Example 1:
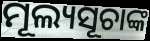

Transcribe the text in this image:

ମୂଲ୍ୟସୂଚାଙ୍କ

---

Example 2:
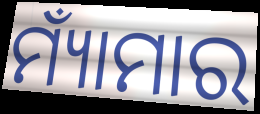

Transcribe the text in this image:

ମ୍ୟାଁମାର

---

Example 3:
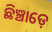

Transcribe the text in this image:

ଛିଞ୍ଚାଡ଼େ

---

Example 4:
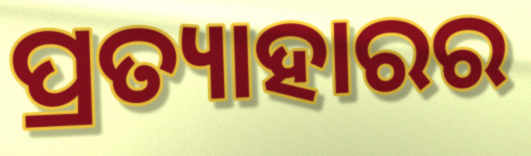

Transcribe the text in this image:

ପ୍ରତ୍ୟାହାରର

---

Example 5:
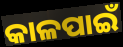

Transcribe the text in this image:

କାଳପାଇଁ